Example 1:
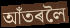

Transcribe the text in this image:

আঁতৰলৈ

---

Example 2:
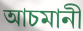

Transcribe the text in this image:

আচমানী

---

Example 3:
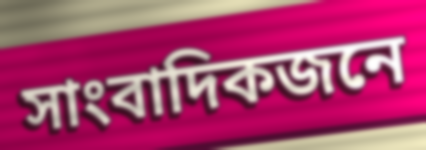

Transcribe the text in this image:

সাংবাদিকজনে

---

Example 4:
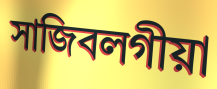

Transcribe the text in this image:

সাজিবলগীয়া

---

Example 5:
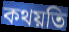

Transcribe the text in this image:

কথয়তি